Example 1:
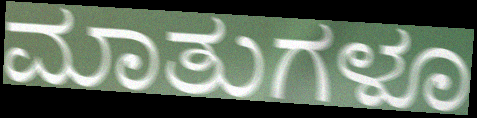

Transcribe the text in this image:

ಮಾತುಗಳೂ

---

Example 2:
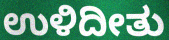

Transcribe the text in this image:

ಉಳಿದೀತು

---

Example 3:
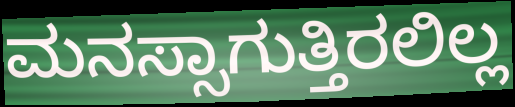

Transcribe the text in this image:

ಮನಸ್ಸಾಗುತ್ತಿರಲಿಲ್ಲ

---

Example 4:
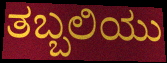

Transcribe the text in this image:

ತಬ್ಬಲಿಯು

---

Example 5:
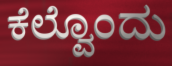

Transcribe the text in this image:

ಕೆಲ್ವೊಂದು